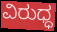
ವಿರುಧ್ಧ